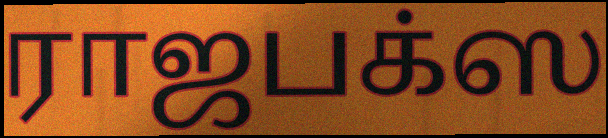
ராஜபக்ஸ